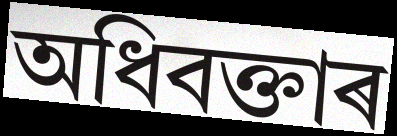
অধিবক্তাৰ